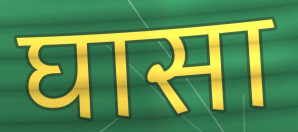
घासा